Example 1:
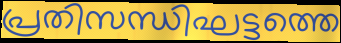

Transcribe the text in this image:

പ്രതിസന്ധിഘട്ടത്തെ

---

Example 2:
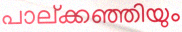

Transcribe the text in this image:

പാല്ക്കഞ്ഞിയും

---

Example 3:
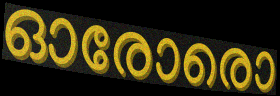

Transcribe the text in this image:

ഓരോരൊ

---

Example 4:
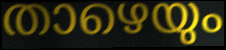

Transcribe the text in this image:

താഴെയും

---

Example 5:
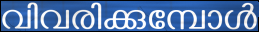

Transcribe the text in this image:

വിവരിക്കുമ്പോൾ